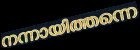
നന്നായിത്തന്നെ